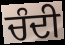
ਚੰਦੀ